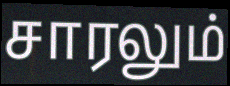
சாரலும்